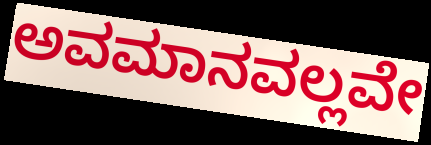
ಅವಮಾನವಲ್ಲವೇ